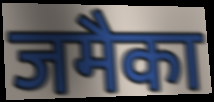
जमैका